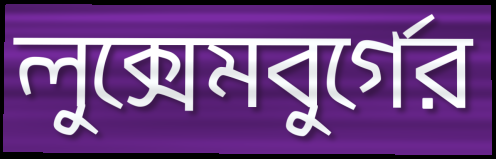
লুক্সেমবুর্গের